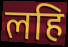
लहि